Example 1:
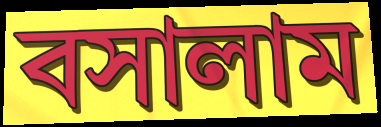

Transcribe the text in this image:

বসালাম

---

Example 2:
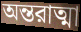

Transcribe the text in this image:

অন্তরাত্মা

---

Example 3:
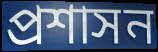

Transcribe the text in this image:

প্রশাসন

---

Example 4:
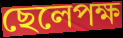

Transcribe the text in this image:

ছেলেপক্ষ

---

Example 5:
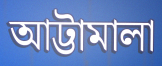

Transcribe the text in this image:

আট্টামালা